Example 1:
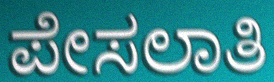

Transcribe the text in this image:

ಪೇಸಲಾತಿ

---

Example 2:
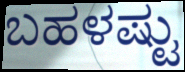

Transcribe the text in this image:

ಬಹಳಷ್ಟು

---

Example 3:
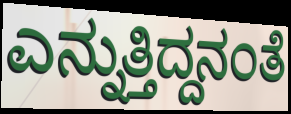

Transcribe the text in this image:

ಎನ್ನುತ್ತಿದ್ದನಂತೆ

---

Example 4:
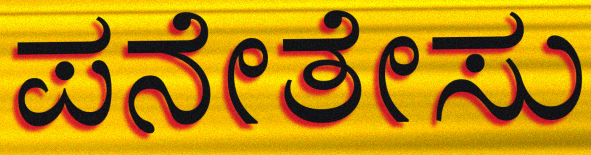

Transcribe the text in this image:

ಪನೇತೇಸು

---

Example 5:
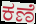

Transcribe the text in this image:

ಕಣೆ